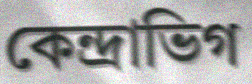
কেন্দ্রাভিগ